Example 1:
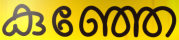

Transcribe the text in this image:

കുഞ്ഞേ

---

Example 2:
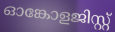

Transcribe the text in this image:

ഓങ്കോളജിസ്റ്റ്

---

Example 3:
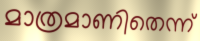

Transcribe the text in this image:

മാത്രമാണിതെന്ന്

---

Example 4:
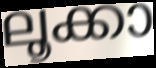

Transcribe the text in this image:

ലൂക്കാ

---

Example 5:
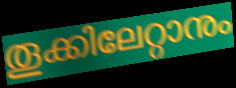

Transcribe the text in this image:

തൂക്കിലേറ്റാനും